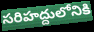
సరిహద్దులోనికి